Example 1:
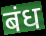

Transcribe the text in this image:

बंध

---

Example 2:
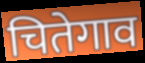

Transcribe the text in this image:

चितेगाव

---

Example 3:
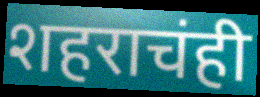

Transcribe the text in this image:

शहराचंही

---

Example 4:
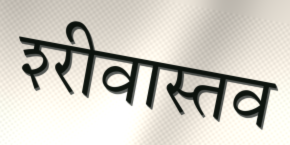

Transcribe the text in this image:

श्रीवास्तव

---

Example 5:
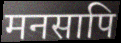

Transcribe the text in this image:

मनसापि